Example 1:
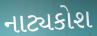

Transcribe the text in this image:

નાટ્યકોશ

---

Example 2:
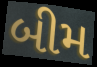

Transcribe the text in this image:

બીમ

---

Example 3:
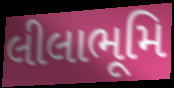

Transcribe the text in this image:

લીલાભૂમિ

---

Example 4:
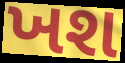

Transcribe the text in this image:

ખશ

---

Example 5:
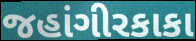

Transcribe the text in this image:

જહાંગીરકાકા